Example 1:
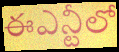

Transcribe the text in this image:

ఈఎన్టీలో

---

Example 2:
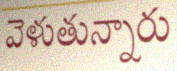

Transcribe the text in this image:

వెళుతున్నారు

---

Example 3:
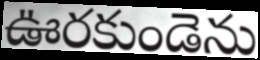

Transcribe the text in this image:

ఊరకుండెను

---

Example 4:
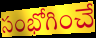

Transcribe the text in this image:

సంభోగించే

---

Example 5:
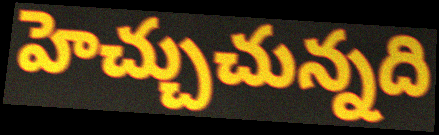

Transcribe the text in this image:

హెచ్చుచున్నది